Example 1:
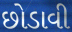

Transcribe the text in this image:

છોડાવી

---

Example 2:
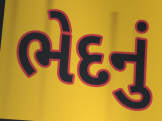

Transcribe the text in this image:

ભેદનું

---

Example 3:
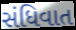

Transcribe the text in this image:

સંધિવાત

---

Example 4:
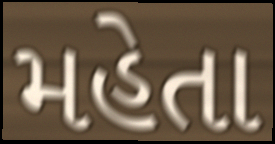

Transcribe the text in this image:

મહેતા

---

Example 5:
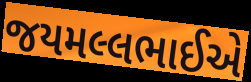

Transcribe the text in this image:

જયમલ્લભાઈએ